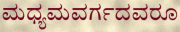
ಮಧ್ಯಮವರ್ಗದವರೂ